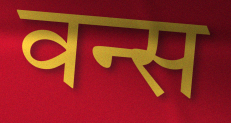
वन्स